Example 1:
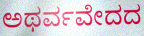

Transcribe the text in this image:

ಅಥರ್ವವೇದದ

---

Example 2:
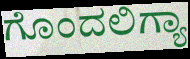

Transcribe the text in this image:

ಗೊಂದಲಿಗ್ಯಾ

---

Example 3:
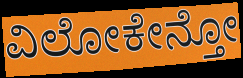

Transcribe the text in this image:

ವಿಲೋಕೇನ್ತೋ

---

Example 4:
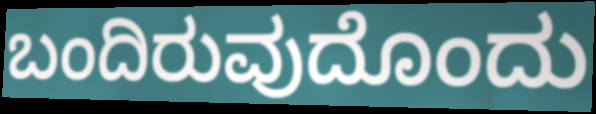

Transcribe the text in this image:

ಬಂದಿರುವುದೊಂದು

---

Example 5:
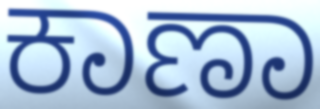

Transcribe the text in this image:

ಕಾಣಾ